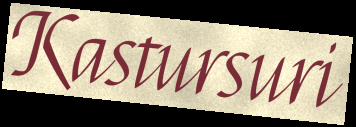
Kastursuri